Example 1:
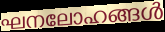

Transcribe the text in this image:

ഘനലോഹങ്ങൾ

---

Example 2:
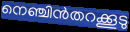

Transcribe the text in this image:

നെഞ്ചിൻതറക്കൂടു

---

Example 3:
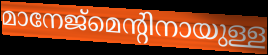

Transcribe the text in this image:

മാനേജ്മെന്റിനായുള്ള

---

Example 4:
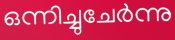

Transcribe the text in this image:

ഒന്നിച്ചുചേർന്നു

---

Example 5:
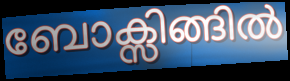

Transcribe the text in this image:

ബോക്സിങ്ങിൽ